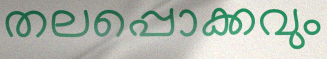
തലപ്പൊക്കവും